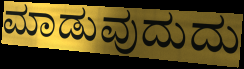
ಮಾಡುವುದುದು